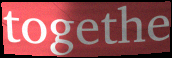
togethe